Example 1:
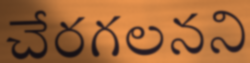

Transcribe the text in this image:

చేరగలనని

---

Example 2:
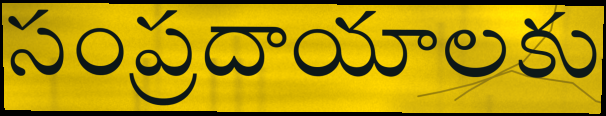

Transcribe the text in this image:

సంప్రదాయాలకు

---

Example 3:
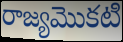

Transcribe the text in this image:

రాజ్యమొకటి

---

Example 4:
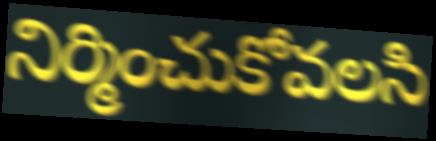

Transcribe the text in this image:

నిర్మించుకోవలసి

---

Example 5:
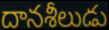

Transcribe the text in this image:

దానశీలుడు